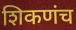
शिकणंच